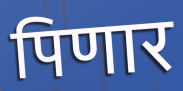
पिणार